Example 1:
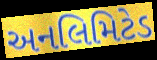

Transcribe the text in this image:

અનલિમિટેડ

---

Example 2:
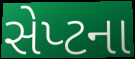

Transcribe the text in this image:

સેપ્ટના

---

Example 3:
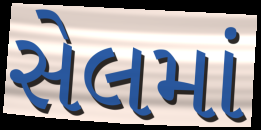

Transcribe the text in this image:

સેલમાં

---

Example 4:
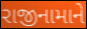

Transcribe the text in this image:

રાજીનામાને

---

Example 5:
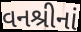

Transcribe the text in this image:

વનશ્રીનાં